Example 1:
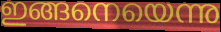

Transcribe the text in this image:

ഇങ്ങനെയെന്നു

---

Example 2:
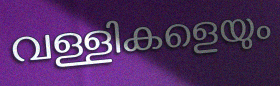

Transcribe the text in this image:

വള്ളികളെയും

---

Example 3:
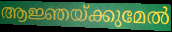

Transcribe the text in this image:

ആജ്ഞയ്ക്കുമേൽ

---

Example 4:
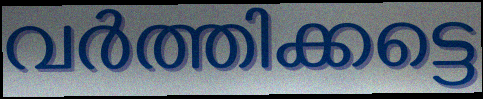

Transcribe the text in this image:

വർത്തിക്കട്ടെ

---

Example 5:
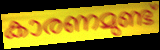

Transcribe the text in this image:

കാരണമുണ്ട്